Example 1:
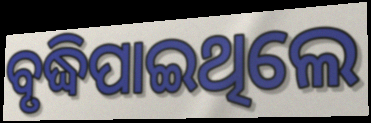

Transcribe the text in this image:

ବୃଦ୍ଧିପାଇଥିଲେ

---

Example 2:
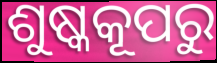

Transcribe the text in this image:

ଶୁଷ୍କକୂପରୁ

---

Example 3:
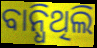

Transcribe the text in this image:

ବାନ୍ଧିଥିଲି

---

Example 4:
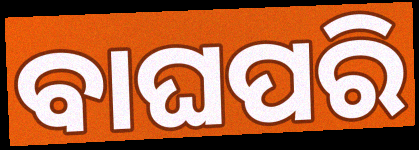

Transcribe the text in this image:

ବାଘପରି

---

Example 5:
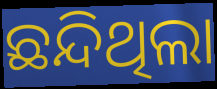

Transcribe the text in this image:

ଛନ୍ଦିଥିଲା